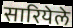
सारियेले